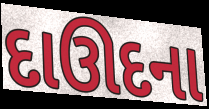
દાઊદના